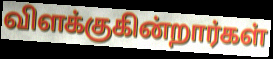
விளக்குகின்றார்கள்